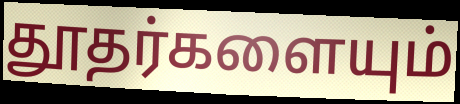
தூதர்களையும்